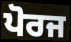
ਪੋਰਜ